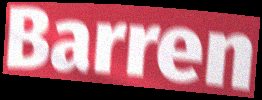
Barren